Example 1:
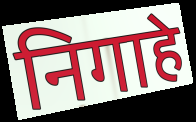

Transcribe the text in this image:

निगाहे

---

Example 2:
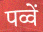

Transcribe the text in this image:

पव्वें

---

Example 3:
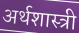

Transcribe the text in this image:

अर्थशास्त्री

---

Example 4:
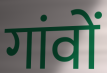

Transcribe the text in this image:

गांवों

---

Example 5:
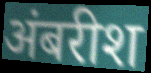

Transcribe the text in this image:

अंबरीश